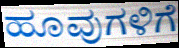
ಹೂವುಗಳಿಗೆ